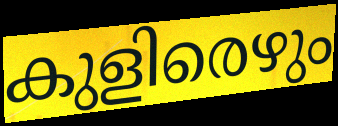
കുളിരെഴും